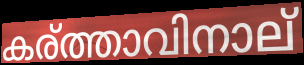
കര്ത്താവിനാല്